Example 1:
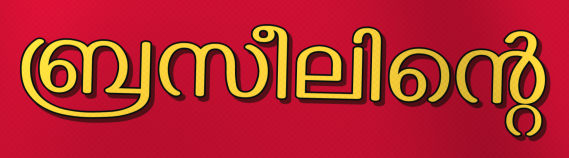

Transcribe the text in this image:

ബ്രസീലിന്റെ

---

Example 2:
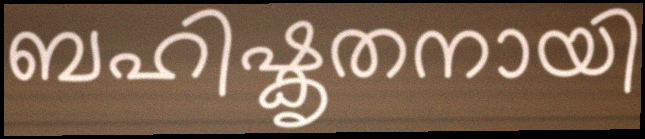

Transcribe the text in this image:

ബഹിഷ്കൃതനായി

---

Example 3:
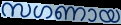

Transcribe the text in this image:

സഗണായ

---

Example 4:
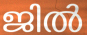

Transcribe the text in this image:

ജിൽ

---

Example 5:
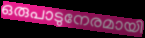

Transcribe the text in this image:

ഒരുപാടുനേരമായി